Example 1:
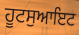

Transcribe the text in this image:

ਹੂਟਸੁਆਇਟ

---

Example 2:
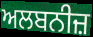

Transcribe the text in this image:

ਅਲਬਨੀਜ਼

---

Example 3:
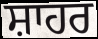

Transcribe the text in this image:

ਸ਼ਾਹਰ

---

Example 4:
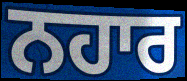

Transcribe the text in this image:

ਨਹਾਰ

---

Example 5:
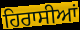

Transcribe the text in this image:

ਹਿਰਾਸੀਆਂ